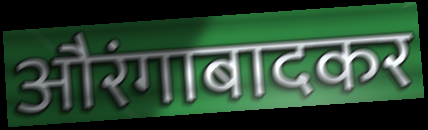
औरंगाबादकर